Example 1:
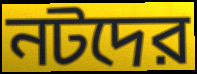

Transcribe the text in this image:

নটদের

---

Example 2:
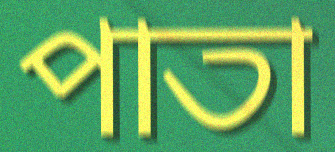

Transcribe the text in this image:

পাতা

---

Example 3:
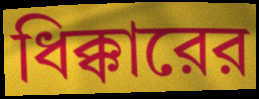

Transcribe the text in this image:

ধিক্কারের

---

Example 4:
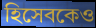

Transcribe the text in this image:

হিসেবকেও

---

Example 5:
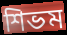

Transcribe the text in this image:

শিভম